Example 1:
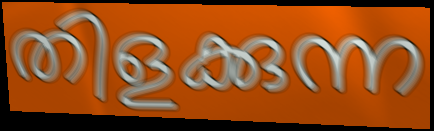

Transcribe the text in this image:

തിളക്കുന്ന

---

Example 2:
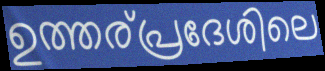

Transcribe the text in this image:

ഉത്തര്പ്രദേശിലെ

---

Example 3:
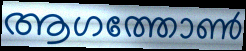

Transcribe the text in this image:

ആഗത്തോൺ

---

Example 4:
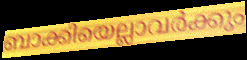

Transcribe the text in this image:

ബാക്കിയെല്ലാവർക്കും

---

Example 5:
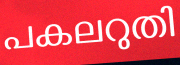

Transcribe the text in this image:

പകലറുതി